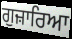
ਗੁਜ਼ਾਰਿਆ